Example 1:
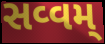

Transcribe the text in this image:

સવ્વમ્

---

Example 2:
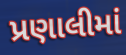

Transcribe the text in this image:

પ્રણાલીમાં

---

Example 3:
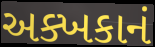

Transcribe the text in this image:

અક્ખકાનં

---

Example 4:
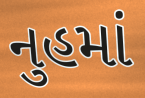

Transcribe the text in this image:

નુહમાં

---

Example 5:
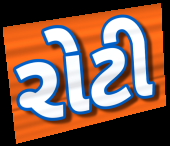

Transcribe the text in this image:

રોટી